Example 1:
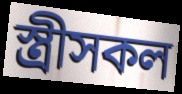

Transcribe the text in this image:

স্ত্ৰীসকল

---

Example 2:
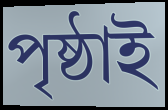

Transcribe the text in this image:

পৃষ্ঠাই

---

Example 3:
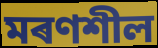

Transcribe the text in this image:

মৰণশীল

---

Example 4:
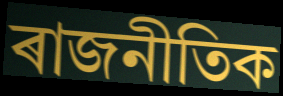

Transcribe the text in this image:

ৰাজনীতিক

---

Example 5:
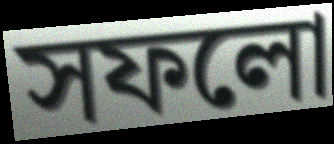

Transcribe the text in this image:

সফলো